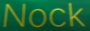
Nock